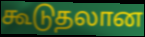
கூடுதலான